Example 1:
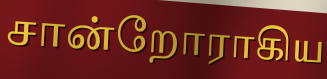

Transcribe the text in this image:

சான்றோராகிய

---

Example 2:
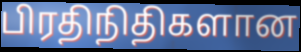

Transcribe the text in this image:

பிரதிநிதிகளான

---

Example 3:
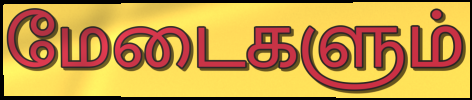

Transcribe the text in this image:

மேடைகளும்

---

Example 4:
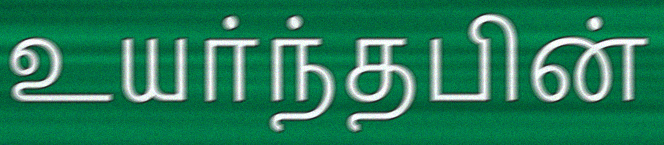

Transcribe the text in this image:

உயர்ந்தபின்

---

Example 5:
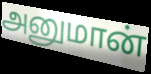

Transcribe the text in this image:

அனுமான்